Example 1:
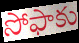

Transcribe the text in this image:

సోఫాకు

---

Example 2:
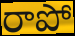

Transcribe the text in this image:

రాపో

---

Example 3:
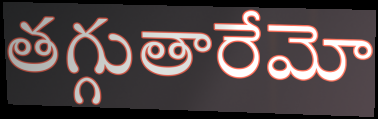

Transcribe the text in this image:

తగ్గుతారేమో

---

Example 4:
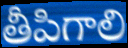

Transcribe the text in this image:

తీపిగాలి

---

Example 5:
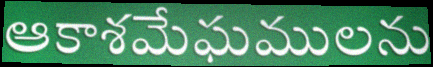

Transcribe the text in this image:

ఆకాశమేఘములను